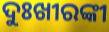
ଦୁଃଖୀରଙ୍କୀ